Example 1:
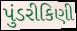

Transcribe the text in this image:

પુંડરીકિણી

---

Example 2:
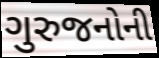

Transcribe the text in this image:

ગુરુજનોની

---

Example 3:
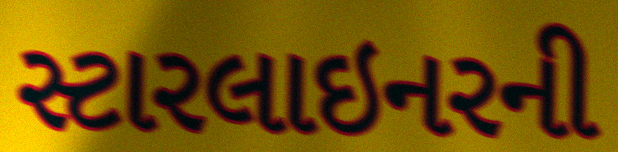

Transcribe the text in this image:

સ્ટારલાઇનરની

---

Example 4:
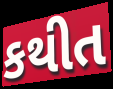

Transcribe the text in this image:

કથીત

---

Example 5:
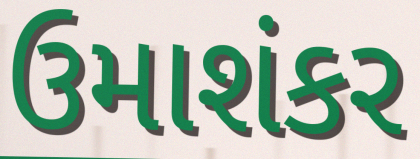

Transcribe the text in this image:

ઉમાશંકર